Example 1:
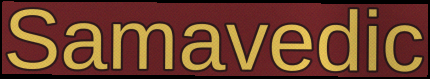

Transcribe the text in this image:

Samavedic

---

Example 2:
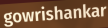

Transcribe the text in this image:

gowrishankar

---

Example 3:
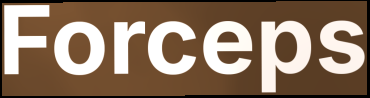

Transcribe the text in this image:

Forceps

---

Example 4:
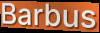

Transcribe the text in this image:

Barbus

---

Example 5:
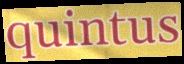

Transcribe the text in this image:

quintus